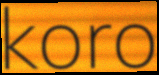
koro